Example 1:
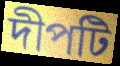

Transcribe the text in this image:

দীপটি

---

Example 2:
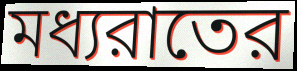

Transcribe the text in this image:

মধ্যরাতের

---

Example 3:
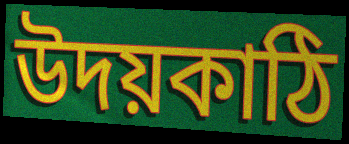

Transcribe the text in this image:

উদয়কাঠি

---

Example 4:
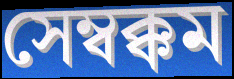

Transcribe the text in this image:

সেম্বক্কম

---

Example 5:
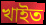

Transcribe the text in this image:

খাইত